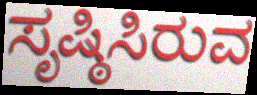
ಸೃಷ್ಠಿಸಿರುವ